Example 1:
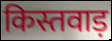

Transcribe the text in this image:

किस्तवाड़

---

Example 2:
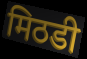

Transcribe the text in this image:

मिठडी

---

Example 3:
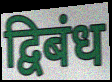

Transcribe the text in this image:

द्विबंध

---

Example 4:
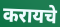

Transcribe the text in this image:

करायचे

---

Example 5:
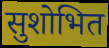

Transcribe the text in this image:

सुशोभित